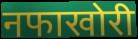
नफाखोरी